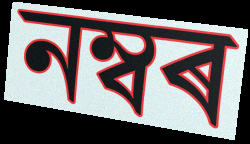
নম্বৰ